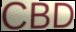
CBD